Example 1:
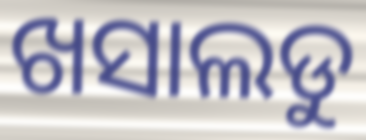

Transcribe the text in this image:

ଖସାଲଡୁ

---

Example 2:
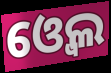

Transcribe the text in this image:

ଓ୍ବେଲ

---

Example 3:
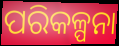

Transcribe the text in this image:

ପରିକଳ୍ପନା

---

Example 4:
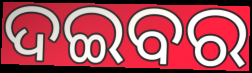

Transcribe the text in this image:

ଦଇବର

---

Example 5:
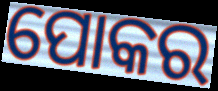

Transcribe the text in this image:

ପୋକର